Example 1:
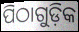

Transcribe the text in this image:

ପିଠାଗୁଡ଼ିକ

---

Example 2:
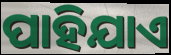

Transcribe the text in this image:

ପାହିଯାଏ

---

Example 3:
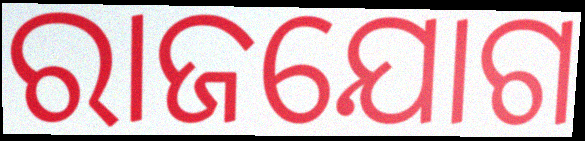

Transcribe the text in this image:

ରାଜଯୋଗ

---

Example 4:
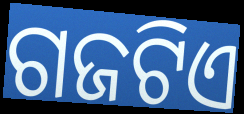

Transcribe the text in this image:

ଗଜଟିଏ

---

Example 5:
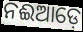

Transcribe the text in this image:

ନଈଆଡ଼େ